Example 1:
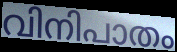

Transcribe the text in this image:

വിനിപാതം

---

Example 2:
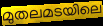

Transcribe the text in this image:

മുതലമടയിലെ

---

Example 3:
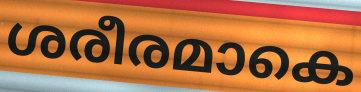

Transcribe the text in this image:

ശരീരമാകെ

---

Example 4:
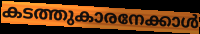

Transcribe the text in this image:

കടത്തുകാരനേക്കാൾ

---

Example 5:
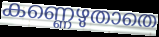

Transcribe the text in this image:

കണ്ണെഴുതാതെ